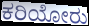
ಕರಿಯೋರು